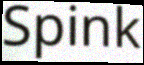
Spink